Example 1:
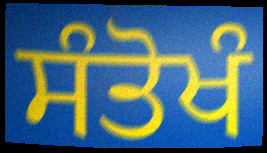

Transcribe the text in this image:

ਸੰਤੋਖੰ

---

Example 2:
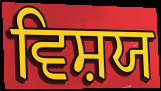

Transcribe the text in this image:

ਵਿਸ਼ਯ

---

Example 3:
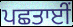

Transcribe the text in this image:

ਪਛਤਾਈਂ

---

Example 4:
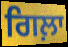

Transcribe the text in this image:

ਗਿਲ਼ਾ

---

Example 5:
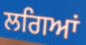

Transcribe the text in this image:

ਲਗਿਆਂ